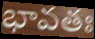
భావతః